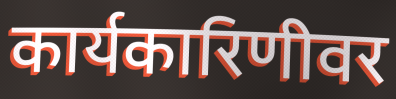
कार्यकारिणीवर